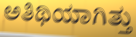
ಅತಿಥಿಯಾಗಿತ್ತು